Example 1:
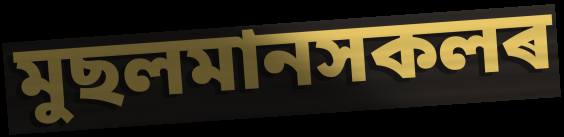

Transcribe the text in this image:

মুছলমানসকলৰ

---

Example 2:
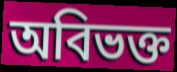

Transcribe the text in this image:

অবিভক্ত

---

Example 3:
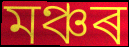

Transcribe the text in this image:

মঞ্চৰ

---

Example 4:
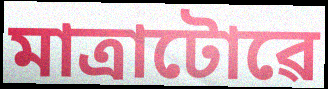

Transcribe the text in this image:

মাত্ৰাটোৱে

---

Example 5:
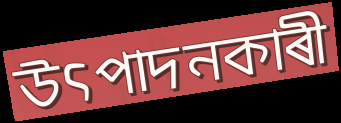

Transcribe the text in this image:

উৎপাদনকাৰী